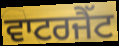
ਵਾਟਰਜੈੱਟ